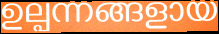
ഉല്പന്നങ്ങളായ